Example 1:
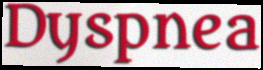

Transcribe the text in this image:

Dyspnea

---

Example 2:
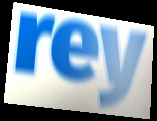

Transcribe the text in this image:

rey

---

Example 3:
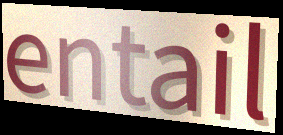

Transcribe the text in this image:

entail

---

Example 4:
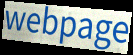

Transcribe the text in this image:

webpage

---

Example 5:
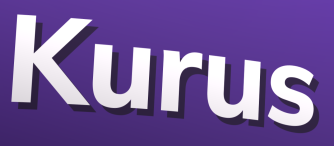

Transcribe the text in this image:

Kurus